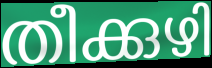
തീക്കുഴി